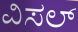
ವಿಸಲ್